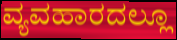
ವ್ಯವಹಾರದಲ್ಲೂ